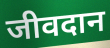
जीवदान